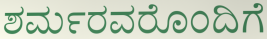
ಶರ್ಮರವರೊಂದಿಗೆ